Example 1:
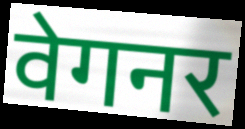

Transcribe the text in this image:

वेगनर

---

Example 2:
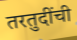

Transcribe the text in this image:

तरतुदींची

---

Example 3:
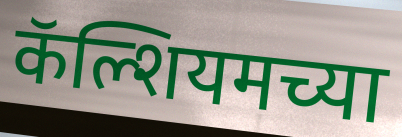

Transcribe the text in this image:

कॅल्शियमच्या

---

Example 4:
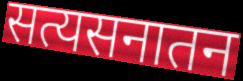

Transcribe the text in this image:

सत्यसनातन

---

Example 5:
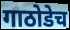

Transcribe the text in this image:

गाठोडेच